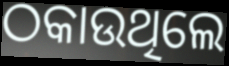
ଠକାଉଥିଲେ